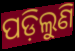
ପଡ଼ିଲୁଣି